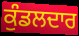
ਕੁੰਡਲਦਾਰ